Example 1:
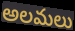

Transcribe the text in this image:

అలమలు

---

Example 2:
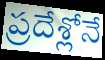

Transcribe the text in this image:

ప్రదేశ్లోనే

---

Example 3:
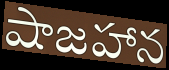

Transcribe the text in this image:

షాజహాన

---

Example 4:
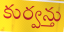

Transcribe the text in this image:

కుర్వన్తు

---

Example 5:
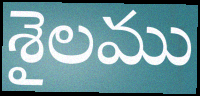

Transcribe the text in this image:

శైలము